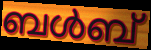
ബൾബ്